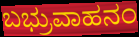
ಬಭ್ರುವಾಹನಂ